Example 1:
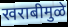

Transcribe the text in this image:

खराबीमुळे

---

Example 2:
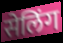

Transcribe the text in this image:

सेलिंग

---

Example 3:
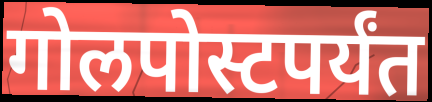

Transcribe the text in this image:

गोलपोस्टपर्यंत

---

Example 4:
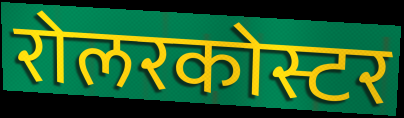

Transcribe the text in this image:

रोलरकोस्टर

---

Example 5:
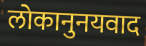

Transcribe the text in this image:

लोकानुनयवाद